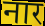
नार